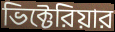
ভিক্টেরিয়ার